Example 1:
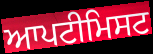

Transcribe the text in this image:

ਆਪਟੀਮਿਸਟ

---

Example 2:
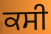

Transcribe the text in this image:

ਕਸੀ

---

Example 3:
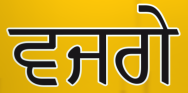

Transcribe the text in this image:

ਵਜਗੇ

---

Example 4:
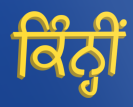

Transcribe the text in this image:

ਕਿੰਨ੍ਹੀਂ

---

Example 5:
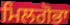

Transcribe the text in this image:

ਮਿਲਗੋਭਾ